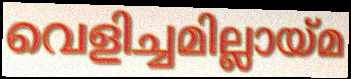
വെളിച്ചമില്ലായ്മ